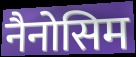
नैनोसिम